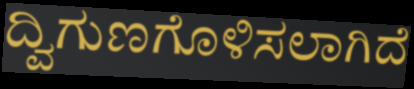
ದ್ವಿಗುಣಗೊಳಿಸಲಾಗಿದೆ